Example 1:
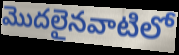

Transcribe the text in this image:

మొదలైనవాటిలో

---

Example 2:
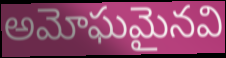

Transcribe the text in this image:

అమోఘమైనవి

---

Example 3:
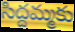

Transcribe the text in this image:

సిద్దమ్మకు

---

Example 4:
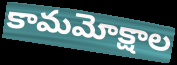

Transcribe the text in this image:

కామమోక్షాల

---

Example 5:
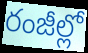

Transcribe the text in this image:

రంజీల్లో